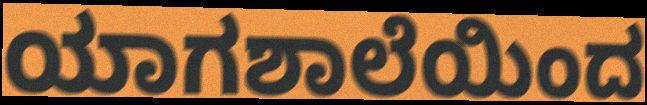
ಯಾಗಶಾಲೆಯಿಂದ